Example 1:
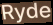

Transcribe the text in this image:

Ryde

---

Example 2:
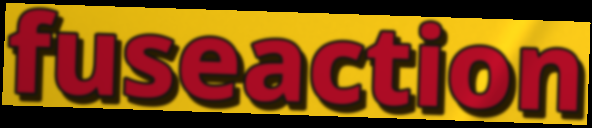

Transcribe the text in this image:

fuseaction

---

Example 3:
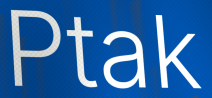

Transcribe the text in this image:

Ptak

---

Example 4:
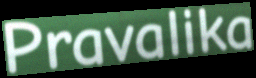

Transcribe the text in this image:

Pravalika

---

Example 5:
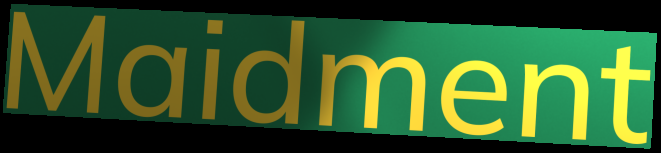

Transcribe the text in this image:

Maidment